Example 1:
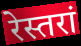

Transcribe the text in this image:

रेस्तरां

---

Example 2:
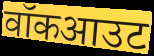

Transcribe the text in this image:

वॉकआउट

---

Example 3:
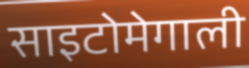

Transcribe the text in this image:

साइटोमेगाली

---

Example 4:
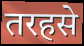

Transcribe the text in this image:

तरहसे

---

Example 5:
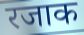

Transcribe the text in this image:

रजाक